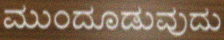
ಮುಂದೂಡುವುದು